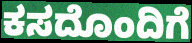
ಕಸದೊಂದಿಗೆ